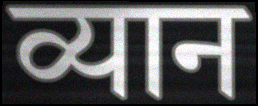
व्यान